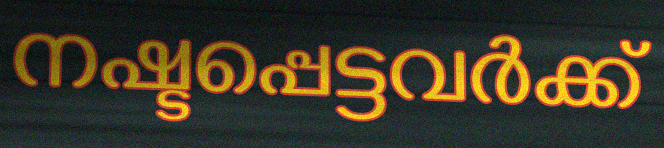
നഷ്ടപ്പെട്ടവർക്ക്